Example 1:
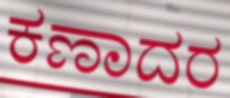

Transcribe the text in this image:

ಕಣಾದರ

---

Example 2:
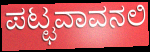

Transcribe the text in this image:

ಪಟ್ಟವಾವನಲಿ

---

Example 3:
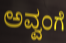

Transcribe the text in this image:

ಅವ್ವಂಗೆ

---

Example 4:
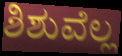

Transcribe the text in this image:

ಶಿಶುವೆಲ್ಲ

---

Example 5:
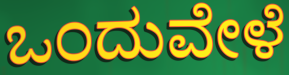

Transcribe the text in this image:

ಒಂದುವೇಳೆ